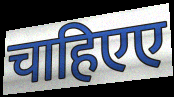
चाहिएए